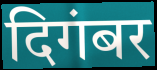
दिगंबर